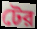
টের